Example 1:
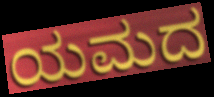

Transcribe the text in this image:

ಯಮದ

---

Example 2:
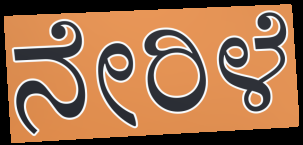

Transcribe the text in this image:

ನೇರಿಳೆ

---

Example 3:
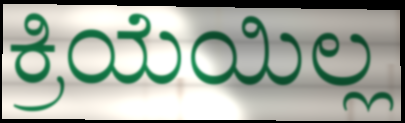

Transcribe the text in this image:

ಕ್ರಿಯೆಯಿಲ್ಲ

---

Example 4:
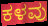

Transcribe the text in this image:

ಕಳವು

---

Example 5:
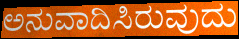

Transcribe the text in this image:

ಅನುವಾದಿಸಿರುವುದು